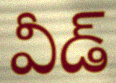
వీడ్